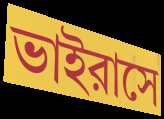
ভাইরাসে